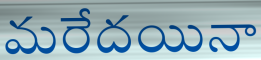
మరేదయినా